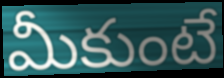
మీకుంటే